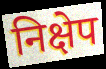
निक्षेप